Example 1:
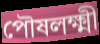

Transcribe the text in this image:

পৌষলক্ষ্মী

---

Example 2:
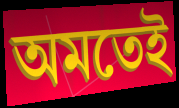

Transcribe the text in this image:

অমতেই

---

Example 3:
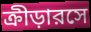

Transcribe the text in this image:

ক্রীড়ারসে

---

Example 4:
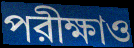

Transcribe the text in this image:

পরীক্ষাও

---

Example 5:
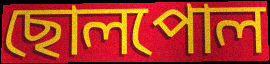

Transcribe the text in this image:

ছোলপোল